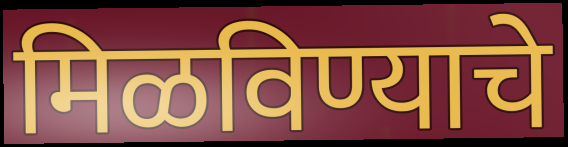
मिळविण्याचे